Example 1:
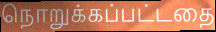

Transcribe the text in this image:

நொறுக்கப்பட்டதை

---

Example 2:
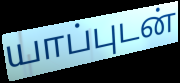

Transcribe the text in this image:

யாப்புடன்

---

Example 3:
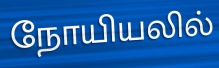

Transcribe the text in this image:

நோயியலில்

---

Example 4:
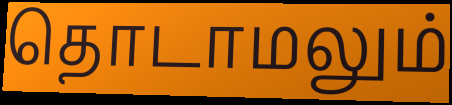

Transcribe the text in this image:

தொடாமலும்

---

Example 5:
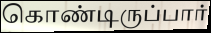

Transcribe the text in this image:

கொண்டிருப்பார்